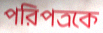
পরিপত্রকে